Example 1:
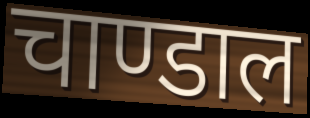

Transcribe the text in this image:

चाण्डाल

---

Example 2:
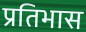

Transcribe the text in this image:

प्रतिभास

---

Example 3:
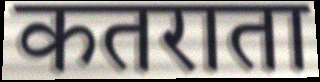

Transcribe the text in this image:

कतराता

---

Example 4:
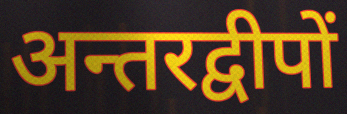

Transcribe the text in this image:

अन्तरद्वीपों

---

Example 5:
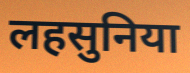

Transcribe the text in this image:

लहसुनिया